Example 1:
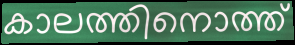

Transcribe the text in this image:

കാലത്തിനൊത്ത്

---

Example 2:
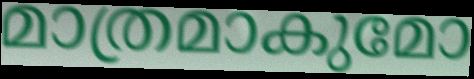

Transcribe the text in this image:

മാത്രമാകുമോ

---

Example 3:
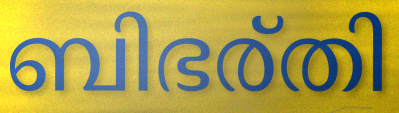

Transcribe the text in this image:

ബിഭര്തി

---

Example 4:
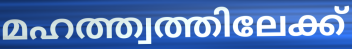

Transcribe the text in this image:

മഹത്ത്വത്തിലേക്ക്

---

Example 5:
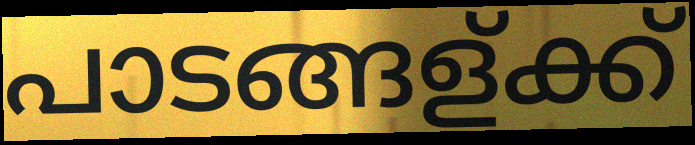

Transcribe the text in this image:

പാടങ്ങള്ക്ക്